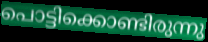
പൊട്ടിക്കൊണ്ടിരുന്നു